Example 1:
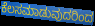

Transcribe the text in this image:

ಕೆಲಸಮಾಡುವುದರಿಂದ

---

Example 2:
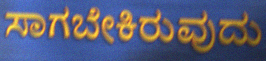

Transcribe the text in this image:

ಸಾಗಬೇಕಿರುವುದು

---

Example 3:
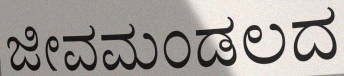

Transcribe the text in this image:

ಜೀವಮಂಡಲದ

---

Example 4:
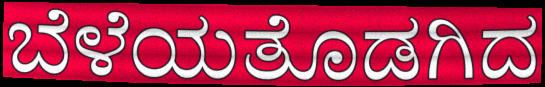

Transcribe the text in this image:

ಬೆಳೆಯತೊಡಗಿದ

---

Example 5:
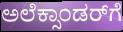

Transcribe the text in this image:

ಅಲೆಕ್ಸಾಂಡರ್‌ಗೆ